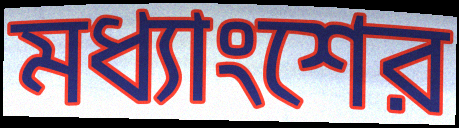
মধ্যাংশের